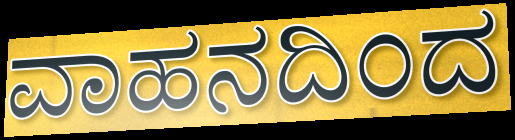
ವಾಹನದಿಂದ